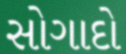
સોગાદો